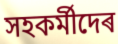
সহকৰ্মীদেৰ